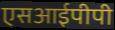
एसआईपीपी